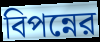
বিপন্নের